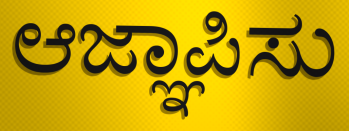
ಆಜ್ಞಾಪಿಸು